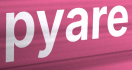
pyare